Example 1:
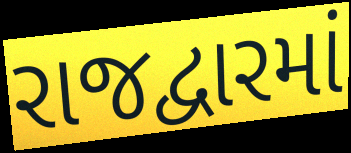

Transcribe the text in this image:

રાજદ્વારમાં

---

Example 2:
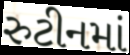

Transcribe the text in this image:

રુટીનમાં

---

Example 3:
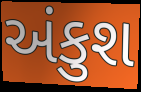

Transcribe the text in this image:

અંકુશ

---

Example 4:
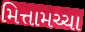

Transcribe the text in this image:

મિત્તામચ્ચા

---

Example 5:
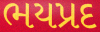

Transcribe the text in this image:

ભયપ્રદ